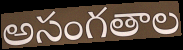
అసంగతాల